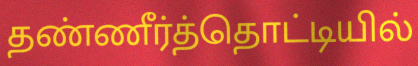
தண்ணீர்த்தொட்டியில்